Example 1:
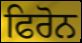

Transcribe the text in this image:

ਫਿਰੋਨ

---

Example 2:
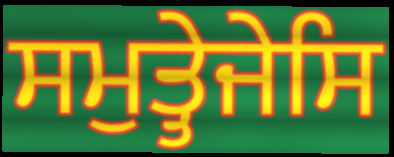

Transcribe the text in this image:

ਸਮੁਤ੍ਤੇਜੇਸਿ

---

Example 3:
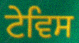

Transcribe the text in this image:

ਟੇਵਿਸ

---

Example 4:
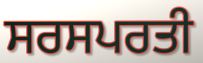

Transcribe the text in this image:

ਸਰਸਪਰਤੀ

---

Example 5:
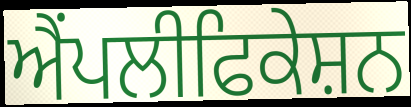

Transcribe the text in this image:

ਐਂਪਲੀਫਿਕੇਸ਼ਨ